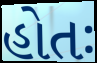
હોતઃ